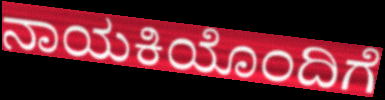
ನಾಯಕಿಯೊಂದಿಗೆ